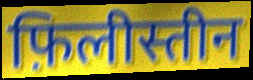
फ़िलीस्तीन